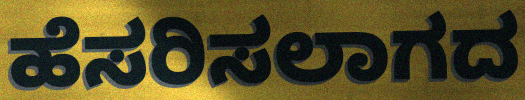
ಹೆಸರಿಸಲಾಗದ